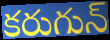
కరుగున్